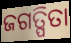
ଜଗତ୍ପିତା